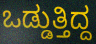
ಒಡ್ಡುತ್ತಿದ್ದ